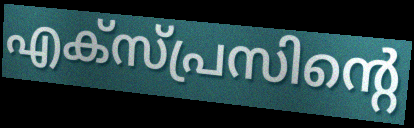
എക്സ്പ്രസിന്റെ